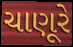
ચાણૂરે